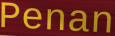
Penan